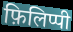
फ़िलिप्पी